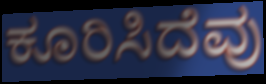
ಕೂರಿಸಿದೆವು